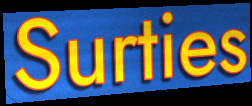
Surties